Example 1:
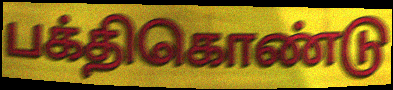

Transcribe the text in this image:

பக்திகொண்டு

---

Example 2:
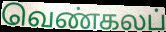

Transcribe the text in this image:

வெண்கலப்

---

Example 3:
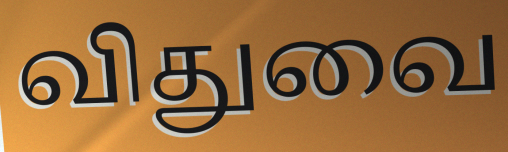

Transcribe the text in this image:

விதுவை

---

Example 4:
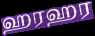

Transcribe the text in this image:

ஹரஹர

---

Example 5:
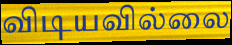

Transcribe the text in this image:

விடியவில்லை